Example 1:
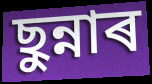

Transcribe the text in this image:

ছুন্নাৰ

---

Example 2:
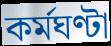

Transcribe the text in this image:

কৰ্মঘণ্টা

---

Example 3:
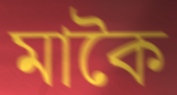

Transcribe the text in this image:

মাকৈ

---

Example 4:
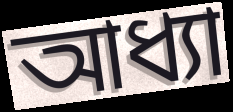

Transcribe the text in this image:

আধ্যা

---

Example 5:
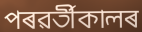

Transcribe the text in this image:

পৰৱৰ্তীকালৰ